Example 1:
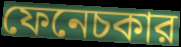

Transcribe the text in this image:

ফেনেচকার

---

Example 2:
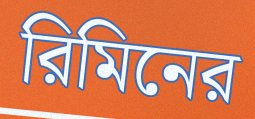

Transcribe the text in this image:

রিমিনের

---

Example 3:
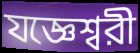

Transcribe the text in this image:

যজ্ঞেশ্বরী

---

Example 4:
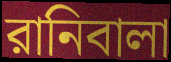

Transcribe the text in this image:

রানিবালা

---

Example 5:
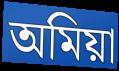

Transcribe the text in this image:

অমিয়া